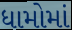
ધામોમાં